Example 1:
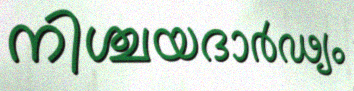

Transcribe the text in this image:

നിശ്ചയദാർഢ്യം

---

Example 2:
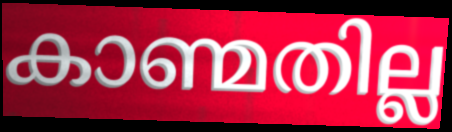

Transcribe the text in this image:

കാണ്മതില്ല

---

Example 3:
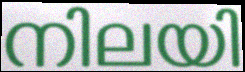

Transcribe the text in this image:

നിലയി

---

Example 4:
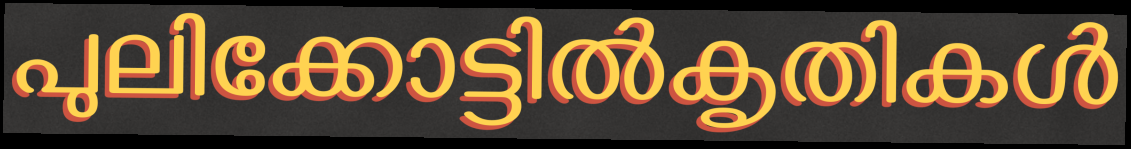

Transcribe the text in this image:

പുലിക്കോട്ടിൽകൃതികൾ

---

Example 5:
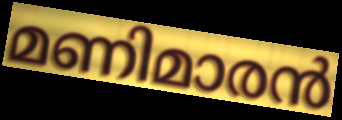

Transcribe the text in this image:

മണിമാരൻ